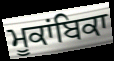
ਮੂਕਾਂਬਿਕਾ